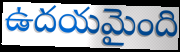
ఉదయమైంది